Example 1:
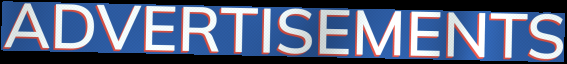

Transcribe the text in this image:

ADVERTISEMENTS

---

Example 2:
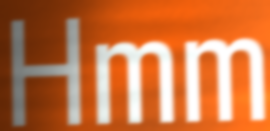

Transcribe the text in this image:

Hmm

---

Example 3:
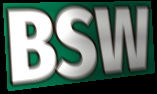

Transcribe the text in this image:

BSW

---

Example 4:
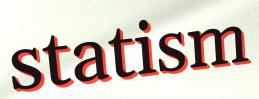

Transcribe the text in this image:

statism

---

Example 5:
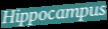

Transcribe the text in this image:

Hippocampus